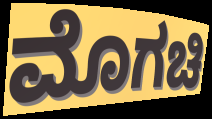
ಮೊಗಚಿ